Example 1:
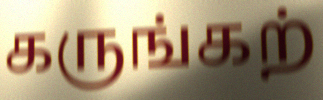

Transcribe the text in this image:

கருங்கற்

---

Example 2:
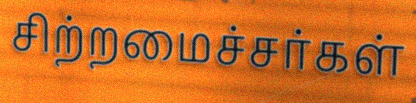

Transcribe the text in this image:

சிற்றமைச்சர்கள்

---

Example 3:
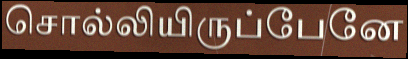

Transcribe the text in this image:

சொல்லியிருப்பேனே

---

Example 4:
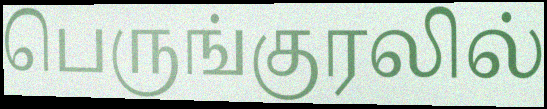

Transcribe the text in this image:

பெருங்குரலில்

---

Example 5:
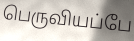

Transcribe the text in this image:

பெருவியப்பே